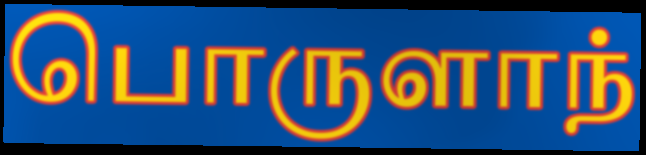
பொருளாந்